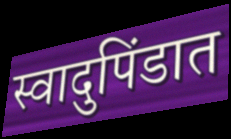
स्वादुपिंडात